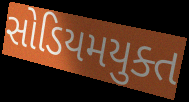
સોડિયમયુક્ત